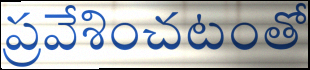
ప్రవేశించటంతో